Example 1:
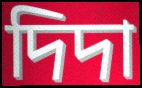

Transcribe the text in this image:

দিদা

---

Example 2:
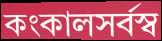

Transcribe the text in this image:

কংকালসর্বস্ব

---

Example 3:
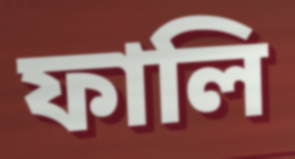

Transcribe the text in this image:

ফালি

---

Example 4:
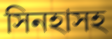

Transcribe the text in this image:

সিনহাসহ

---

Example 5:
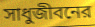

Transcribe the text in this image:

সাধুজীবনের